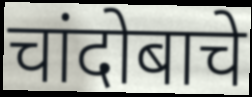
चांदोबाचे